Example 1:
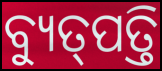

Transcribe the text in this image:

ବ୍ୟୁତ୍‌ପତ୍ତି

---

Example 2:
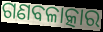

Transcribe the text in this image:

ଗଣବଳାତ୍କାର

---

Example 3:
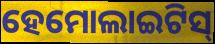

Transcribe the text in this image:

ହେମୋଲାଇଟିସ୍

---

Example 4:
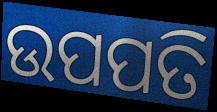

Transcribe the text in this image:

ଉପପତି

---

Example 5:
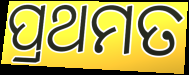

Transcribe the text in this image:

ପ୍ରଥମତ